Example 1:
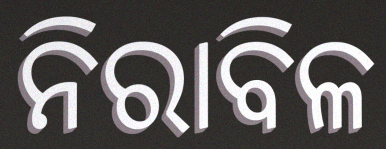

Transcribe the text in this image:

ନିରାବିଳ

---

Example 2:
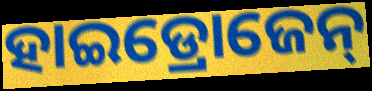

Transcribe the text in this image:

ହାଇଡ୍ରୋଜେନ୍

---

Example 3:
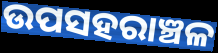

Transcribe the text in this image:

ଉପସହରାଞ୍ଚଳ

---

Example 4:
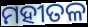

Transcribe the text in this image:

ମହୀତଳ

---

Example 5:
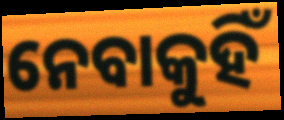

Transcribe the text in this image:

ନେବାକୁହିଁ